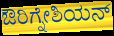
ಔರಿಗ್ನೇಶಿಯನ್